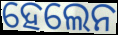
ହେଲେନ